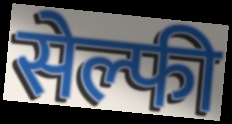
सेल्फी